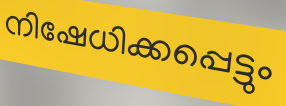
നിഷേധിക്കപ്പെട്ടും